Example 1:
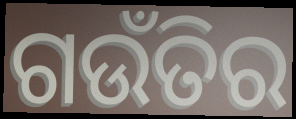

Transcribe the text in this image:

ଗଉଁତିର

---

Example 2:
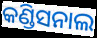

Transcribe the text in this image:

କଣ୍ଡିସନାଲ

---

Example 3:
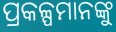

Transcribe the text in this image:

ପ୍ରକଳ୍ପମାନଙ୍କୁ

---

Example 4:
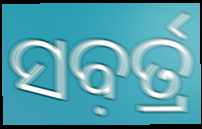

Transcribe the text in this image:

ସବ଼ର୍ତ୍ର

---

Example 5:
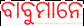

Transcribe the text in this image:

ବାବୁମାନେ